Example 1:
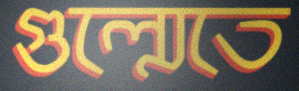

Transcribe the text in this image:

গুল্মেতে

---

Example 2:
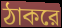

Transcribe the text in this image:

ঠাকরে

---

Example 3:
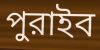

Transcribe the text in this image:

পুরাইব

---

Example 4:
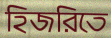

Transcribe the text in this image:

হিজরিতে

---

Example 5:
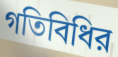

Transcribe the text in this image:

গতিবিধির